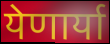
येणार्या